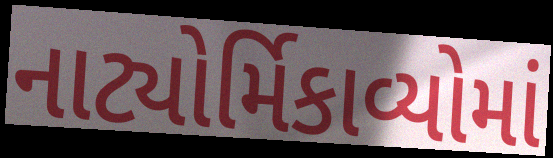
નાટ્યોર્મિકાવ્યોમાં